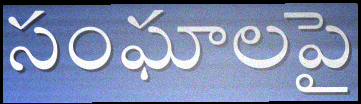
సంఘాలపై